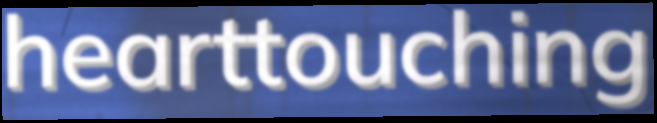
hearttouching